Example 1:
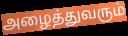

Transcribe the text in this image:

அழைத்துவரும்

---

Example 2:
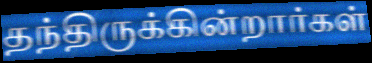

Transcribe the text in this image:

தந்திருக்கின்றார்கள்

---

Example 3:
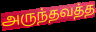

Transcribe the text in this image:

அருந்தவத்த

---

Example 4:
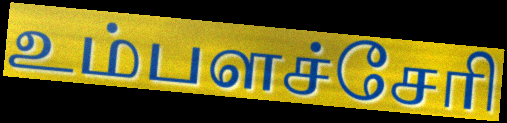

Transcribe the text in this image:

உம்பளச்சேரி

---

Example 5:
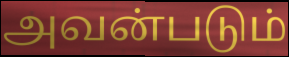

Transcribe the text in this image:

அவன்படும்